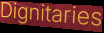
Dignitaries